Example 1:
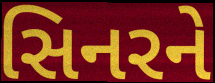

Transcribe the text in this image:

સિનરને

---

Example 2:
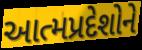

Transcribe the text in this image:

આત્મપ્રદેશોને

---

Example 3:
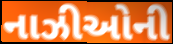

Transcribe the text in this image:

નાઝીઓની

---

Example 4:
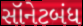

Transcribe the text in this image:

સૉનેટબંધ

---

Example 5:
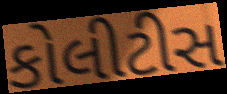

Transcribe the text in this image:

કોલીટીસ